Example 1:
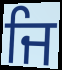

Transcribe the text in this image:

ਜਿ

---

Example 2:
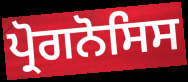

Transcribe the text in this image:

ਪ੍ਰੋਗਨੋਸਿਸ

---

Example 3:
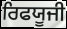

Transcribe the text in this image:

ਰਿਫਯੂਜੀ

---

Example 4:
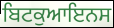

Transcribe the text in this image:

ਬਿਟਕੁਆਇਨਸ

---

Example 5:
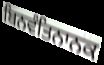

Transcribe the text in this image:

ਬਿਨਵੰਤਿਨਾਨਕ